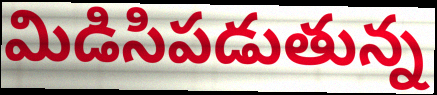
మిడిసిపడుతున్న